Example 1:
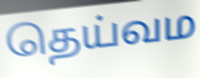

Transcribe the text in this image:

தெய்வம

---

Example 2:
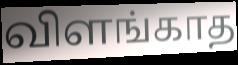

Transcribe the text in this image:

விளங்காத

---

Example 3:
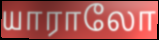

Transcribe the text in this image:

யாராலோ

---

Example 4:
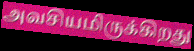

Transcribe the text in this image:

அவசியமிருக்கிறது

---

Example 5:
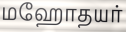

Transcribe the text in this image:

மஹோதயர்